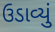
ઉડાવ્યું